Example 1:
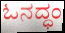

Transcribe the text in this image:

ಓನದ್ಧಂ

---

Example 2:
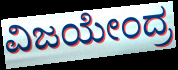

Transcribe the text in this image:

ವಿಜಯೇಂದ್ರ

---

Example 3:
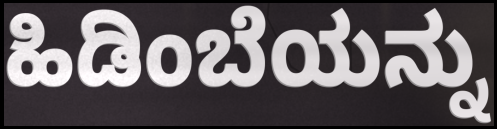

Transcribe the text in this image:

ಹಿಡಿಂಬೆಯನ್ನು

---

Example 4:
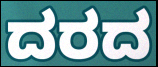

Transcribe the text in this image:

ದರದ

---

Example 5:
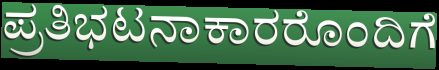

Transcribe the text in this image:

ಪ್ರತಿಭಟನಾಕಾರರೊಂದಿಗೆ